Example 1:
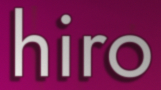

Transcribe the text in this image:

hiro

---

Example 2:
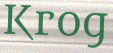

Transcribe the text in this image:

Krog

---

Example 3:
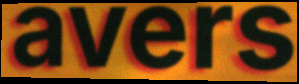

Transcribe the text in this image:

avers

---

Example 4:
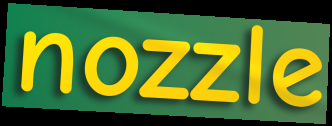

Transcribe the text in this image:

nozzle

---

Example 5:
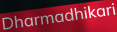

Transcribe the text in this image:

Dharmadhikari